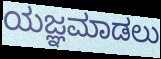
ಯಜ್ಞಮಾಡಲು